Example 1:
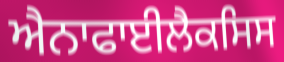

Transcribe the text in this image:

ਐਨਾਫਾਈਲੈਕਸਿਸ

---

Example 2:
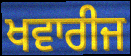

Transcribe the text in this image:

ਖਵਾਰੀਜ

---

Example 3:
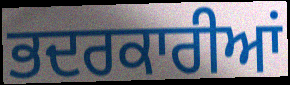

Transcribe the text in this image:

ਭਦਰਕਾਰੀਆਂ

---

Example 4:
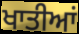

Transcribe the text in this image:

ਖਾਤੀਆਂ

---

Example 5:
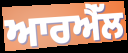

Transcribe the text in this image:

ਆਰਐੱਲ